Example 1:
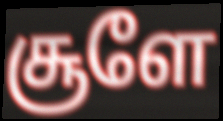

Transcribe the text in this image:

சூளே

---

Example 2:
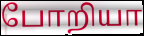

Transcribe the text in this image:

போறியா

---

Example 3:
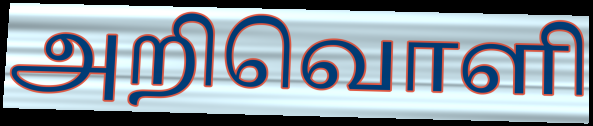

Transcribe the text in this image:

அறிவொளி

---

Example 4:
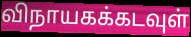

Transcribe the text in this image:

விநாயகக்கடவுள்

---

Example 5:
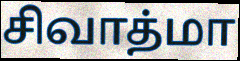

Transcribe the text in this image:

சிவாத்மா